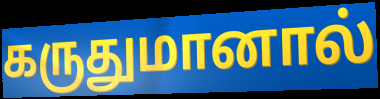
கருதுமானால்